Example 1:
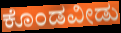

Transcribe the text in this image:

ಕೊಂಡವೀಡು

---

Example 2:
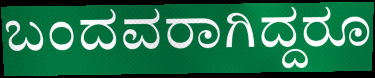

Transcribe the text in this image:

ಬಂದವರಾಗಿದ್ದರೂ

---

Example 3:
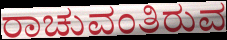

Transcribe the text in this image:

ರಾಚುವಂತಿರುವ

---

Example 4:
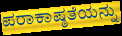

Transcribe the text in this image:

ಪರಾಕಾಷ್ಠತೆಯನ್ನು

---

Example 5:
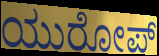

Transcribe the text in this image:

ಯುರೋಪ್